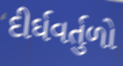
દીર્ઘવર્તુળો